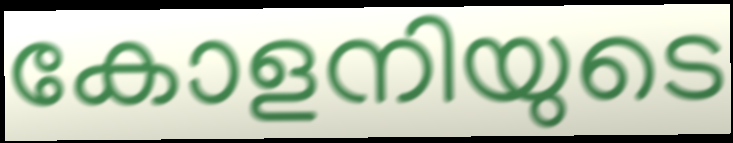
കോളനിയുടെ